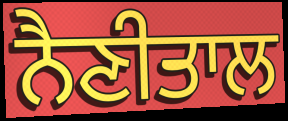
ਨੈਣੀਤਾਲ